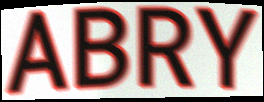
ABRY